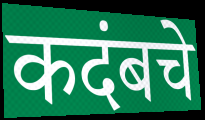
कदंबचे